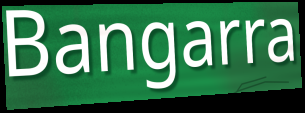
Bangarra